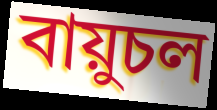
বায়ুচল